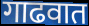
गाढवात